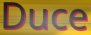
Duce